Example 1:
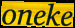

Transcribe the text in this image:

oneke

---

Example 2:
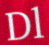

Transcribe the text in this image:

Dl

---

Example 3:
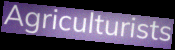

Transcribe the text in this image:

Agriculturists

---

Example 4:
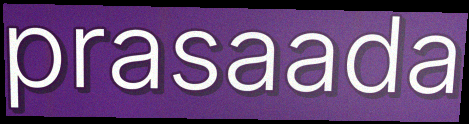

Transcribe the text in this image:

prasaada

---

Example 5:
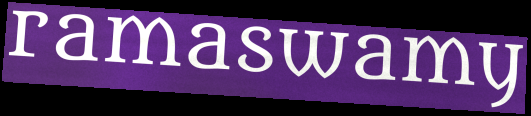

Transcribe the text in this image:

ramaswamy